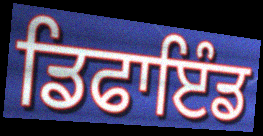
ਡਿਫਾਇੰਡ